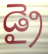
డ్రై